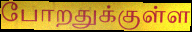
போறதுக்குள்ள